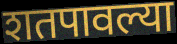
शतपावल्या